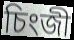
চিংজী